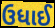
ઉધાઈ